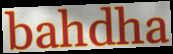
bahdha